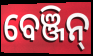
ବେଞ୍ଜିନ୍